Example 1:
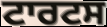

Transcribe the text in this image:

ਟਾਰਟਸ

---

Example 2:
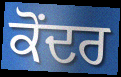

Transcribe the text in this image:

ਕੋਂਦਰ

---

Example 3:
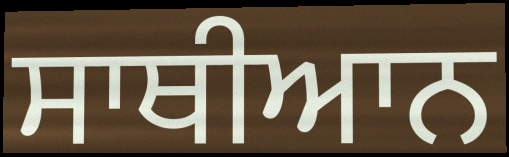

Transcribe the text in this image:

ਸਾਥੀਆਨ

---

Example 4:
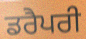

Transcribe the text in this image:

ਡਰੈਪਰੀ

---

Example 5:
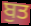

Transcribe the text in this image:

ਬੁਤ